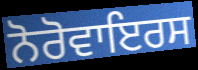
ਨੋਰੋਵਾਇਰਸ